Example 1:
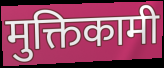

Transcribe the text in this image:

मुक्तिकामी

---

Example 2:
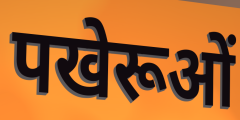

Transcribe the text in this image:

पखेरूओं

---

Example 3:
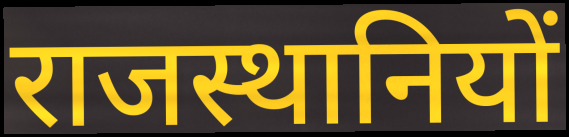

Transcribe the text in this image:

राजस्थानियों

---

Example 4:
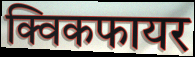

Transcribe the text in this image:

क्विकफायर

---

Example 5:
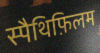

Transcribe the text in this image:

स्पैथिफ़िलम